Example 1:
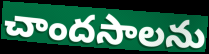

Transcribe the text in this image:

చాందసాలను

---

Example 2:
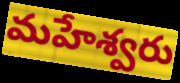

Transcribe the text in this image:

మహేశ్వరు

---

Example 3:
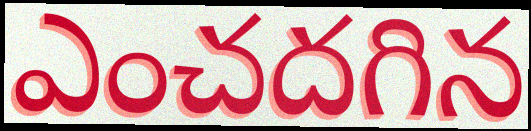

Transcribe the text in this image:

ఎంచదగిన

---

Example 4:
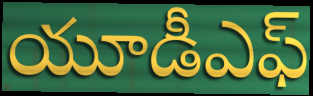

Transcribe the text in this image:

యూడీఎఫ్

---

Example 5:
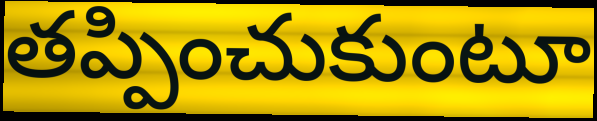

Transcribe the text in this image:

తప్పించుకుంటూ